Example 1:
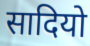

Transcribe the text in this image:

सादियो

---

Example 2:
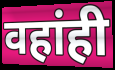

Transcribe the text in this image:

वहांही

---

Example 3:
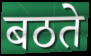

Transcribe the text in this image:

बठते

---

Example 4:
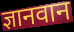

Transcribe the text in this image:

ज्ञानवान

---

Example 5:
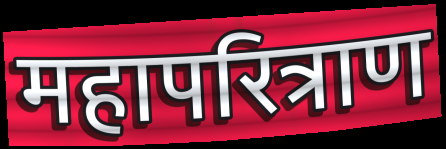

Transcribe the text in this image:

महापरित्राण